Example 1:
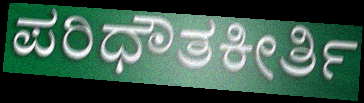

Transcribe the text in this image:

ಪರಿಧೌತಕೀರ್ತಿ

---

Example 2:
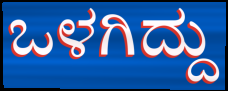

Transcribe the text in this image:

ಒಳಗಿದ್ದು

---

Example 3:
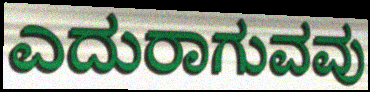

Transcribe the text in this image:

ಎದುರಾಗುವವು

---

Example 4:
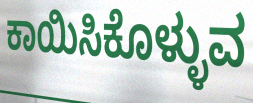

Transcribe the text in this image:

ಕಾಯಿಸಿಕೊಳ್ಳುವ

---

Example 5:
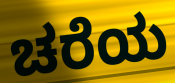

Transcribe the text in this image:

ಚರೆಯ